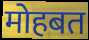
मोहबत